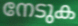
നേടുക